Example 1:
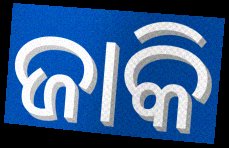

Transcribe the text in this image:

ଜାକି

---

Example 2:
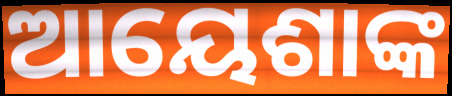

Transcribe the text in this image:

ଆୟେଶାଙ୍କ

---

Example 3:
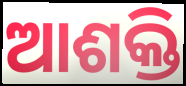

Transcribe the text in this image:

ଆଶକ୍ତି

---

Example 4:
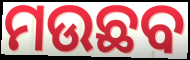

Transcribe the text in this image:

ମଉଛବ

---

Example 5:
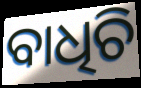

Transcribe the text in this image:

ବାଧିଚି